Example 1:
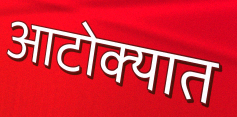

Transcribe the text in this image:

आटोक्यात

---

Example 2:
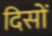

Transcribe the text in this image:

दिसों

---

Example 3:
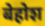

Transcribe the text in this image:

बेहोश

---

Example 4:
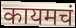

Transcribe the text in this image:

कायमचं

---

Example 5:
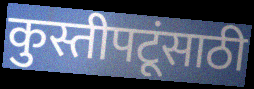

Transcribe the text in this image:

कुस्तीपटूंसाठी